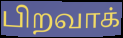
பிறவாக்